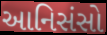
આનિસંસો